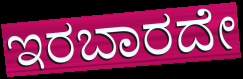
ಇರಬಾರದೇ